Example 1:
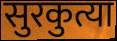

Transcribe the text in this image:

सुरकुत्या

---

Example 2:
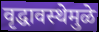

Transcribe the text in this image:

वृद्धावस्थेमुळे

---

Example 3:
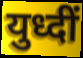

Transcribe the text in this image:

युध्दीं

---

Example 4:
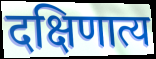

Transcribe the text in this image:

दक्षिणात्य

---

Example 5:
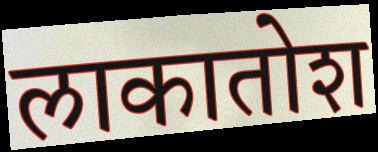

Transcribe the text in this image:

लाकातोश